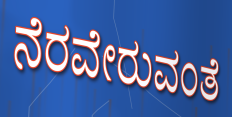
ನೆರವೇರುವಂತೆ